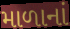
માળાનાં